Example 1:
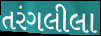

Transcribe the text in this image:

તરંગલીલા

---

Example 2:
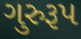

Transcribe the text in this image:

ગુરુરૂપ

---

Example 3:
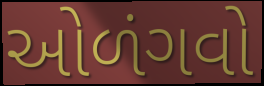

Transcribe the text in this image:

ઓળંગવો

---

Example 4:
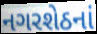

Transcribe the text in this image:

નગરશેઠનાં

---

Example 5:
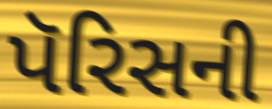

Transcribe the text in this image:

પૅરિસની